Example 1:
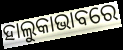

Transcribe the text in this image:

ହାଲୁକାଭାବରେ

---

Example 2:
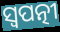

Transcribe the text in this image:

ସ୍ୱପତ୍ନୀ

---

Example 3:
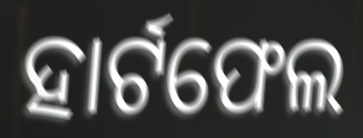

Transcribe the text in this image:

ହାର୍ଟଫେଲ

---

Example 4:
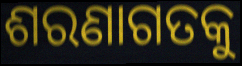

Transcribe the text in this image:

ଶରଣାଗତକୁ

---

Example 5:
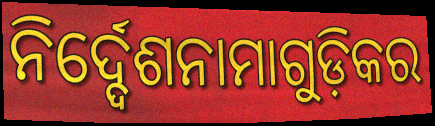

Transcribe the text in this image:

ନିର୍ଦ୍ଦେଶନାମାଗୁଡ଼ିକର